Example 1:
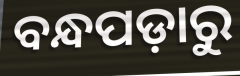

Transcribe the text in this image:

ବନ୍ଧପଡ଼ାରୁ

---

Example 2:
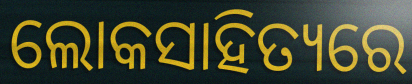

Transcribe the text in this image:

ଲୋକସାହିତ୍ୟରେ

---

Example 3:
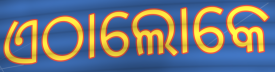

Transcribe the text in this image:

ଏଠାଲୋକେ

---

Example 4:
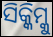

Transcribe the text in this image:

ସିକ୍କିମ୍କୁ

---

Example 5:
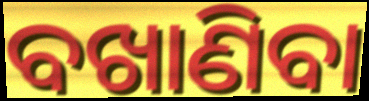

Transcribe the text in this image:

ବଖାଣିବା